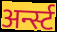
अर्न्स्ट